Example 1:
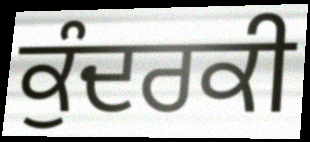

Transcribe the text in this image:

ਕੁੰਦਰਕੀ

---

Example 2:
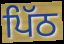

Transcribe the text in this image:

ਪਿੱਠ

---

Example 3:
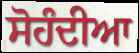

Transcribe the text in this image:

ਸੋਹੰਦੀਆ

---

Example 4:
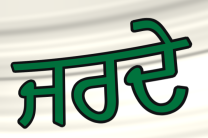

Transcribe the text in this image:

ਜਰਦੇ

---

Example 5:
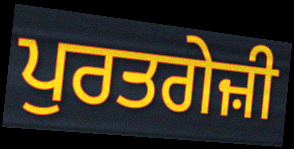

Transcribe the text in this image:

ਪੁਰਤਗੇਜ਼ੀ